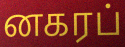
னகரப்